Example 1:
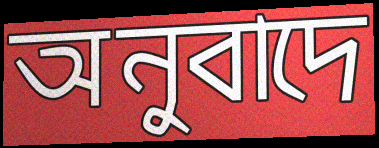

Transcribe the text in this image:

অনুবাদে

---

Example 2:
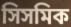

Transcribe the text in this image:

সিসমিক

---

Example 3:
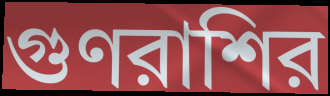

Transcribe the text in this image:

গুণরাশির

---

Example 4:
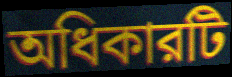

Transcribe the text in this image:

অধিকারটি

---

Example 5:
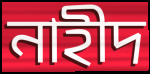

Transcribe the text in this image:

নাহীদ